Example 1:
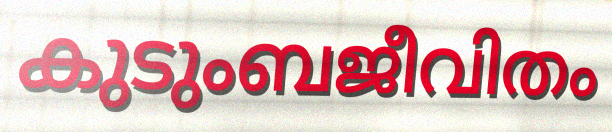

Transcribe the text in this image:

കുടുംബജീവിതം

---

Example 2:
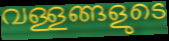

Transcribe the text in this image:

വള്ളങ്ങളുടെ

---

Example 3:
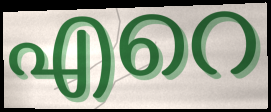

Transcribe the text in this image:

എറെ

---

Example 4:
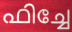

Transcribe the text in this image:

ഫിച്ചേ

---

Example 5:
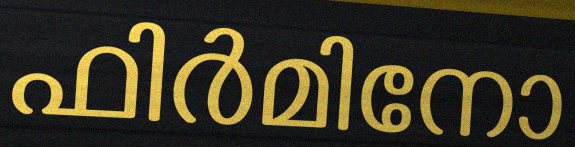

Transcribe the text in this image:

ഫിർമിനോ